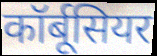
कॉर्बूसियर